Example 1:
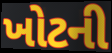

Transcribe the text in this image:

ખોટની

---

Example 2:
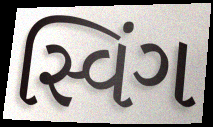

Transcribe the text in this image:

સ્વિંગ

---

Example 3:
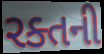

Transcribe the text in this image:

રક્તની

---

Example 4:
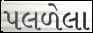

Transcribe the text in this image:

પલળેલા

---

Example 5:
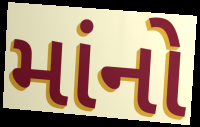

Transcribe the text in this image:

માંનો